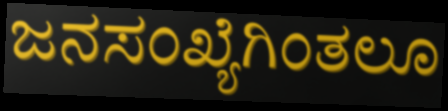
ಜನಸಂಖ್ಯೆಗಿಂತಲೂ